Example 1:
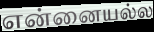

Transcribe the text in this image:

என்னையல்ல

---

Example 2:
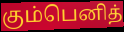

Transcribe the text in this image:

கும்பெனித்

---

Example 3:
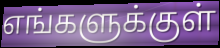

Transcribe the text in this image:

எங்களுக்குள்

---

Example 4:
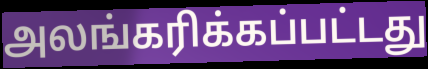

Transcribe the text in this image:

அலங்கரிக்கப்பட்டது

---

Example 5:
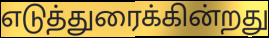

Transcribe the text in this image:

எடுத்துரைக்கின்றது